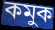
কমুক